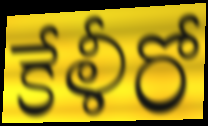
కేళీరో